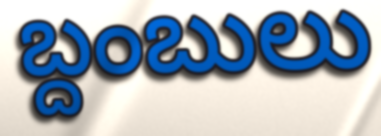
బ్దంబులు